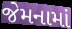
જેમનામાં